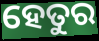
ହେତୁର